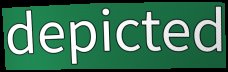
depicted